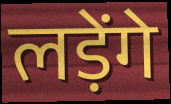
लड़ेंगे